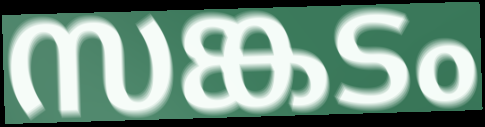
സങ്കടം